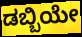
ಡಬ್ಬಿಯೇ